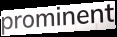
prominent